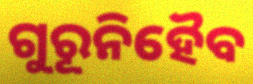
ଗୁରୂନିହୈବ